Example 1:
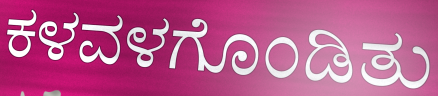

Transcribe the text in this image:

ಕಳವಳಗೊಂಡಿತು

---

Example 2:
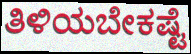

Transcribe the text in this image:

ತಿಳಿಯಬೇಕಷ್ಟೆ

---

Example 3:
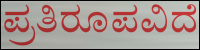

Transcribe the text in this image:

ಪ್ರತಿರೂಪವಿದೆ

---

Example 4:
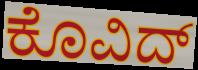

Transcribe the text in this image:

ಕೊವಿದ್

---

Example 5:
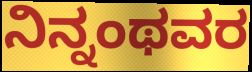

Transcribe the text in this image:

ನಿನ್ನಂಥವರ